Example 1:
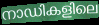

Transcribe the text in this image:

നാഡികളിലെ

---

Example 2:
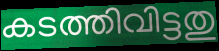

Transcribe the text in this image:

കടത്തിവിട്ടതു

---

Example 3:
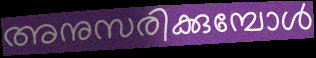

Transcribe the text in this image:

അനുസരിക്കുമ്പോൾ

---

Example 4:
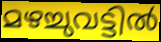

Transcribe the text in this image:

മഴച്ചുവട്ടിൽ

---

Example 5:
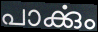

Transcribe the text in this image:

പാൎക്കും